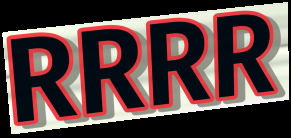
RRRR